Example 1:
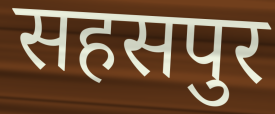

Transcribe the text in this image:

सहसपुर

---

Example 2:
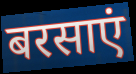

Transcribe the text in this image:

बरसाएं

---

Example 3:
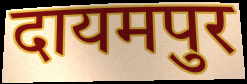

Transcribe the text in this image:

दायमपुर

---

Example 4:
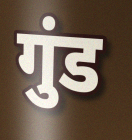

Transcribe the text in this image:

गुंड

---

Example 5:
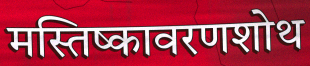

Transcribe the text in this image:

मस्तिष्कावरणशोथ